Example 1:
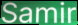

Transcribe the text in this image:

Samir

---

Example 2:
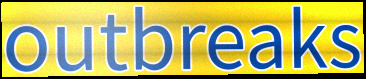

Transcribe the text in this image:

outbreaks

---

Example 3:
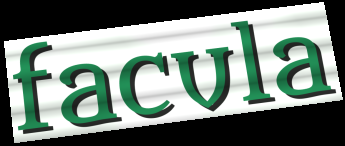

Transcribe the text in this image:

facula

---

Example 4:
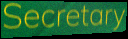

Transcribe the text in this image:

Secretary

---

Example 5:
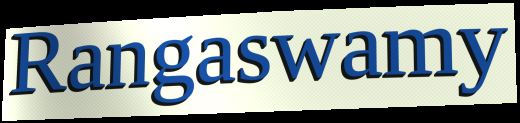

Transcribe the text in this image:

Rangaswamy